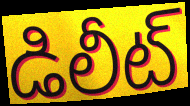
డిలీట్